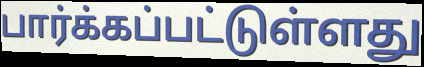
பார்க்கப்பட்டுள்ளது